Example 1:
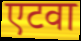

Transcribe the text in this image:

एटवा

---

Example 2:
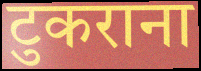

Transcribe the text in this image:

टुकराना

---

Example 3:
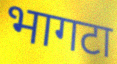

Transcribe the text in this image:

भागटा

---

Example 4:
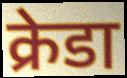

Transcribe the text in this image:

क्रेडा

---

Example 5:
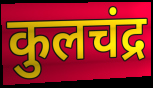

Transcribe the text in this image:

कुलचंद्र